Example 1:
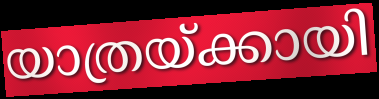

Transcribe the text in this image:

യാത്രയ്ക്കായി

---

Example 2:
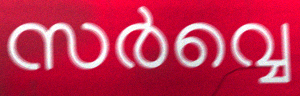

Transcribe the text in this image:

സർവ്വെ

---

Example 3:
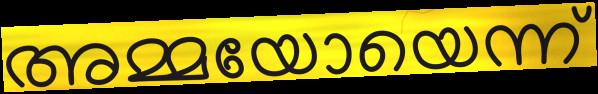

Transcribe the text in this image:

അമ്മയോയെന്ന്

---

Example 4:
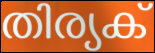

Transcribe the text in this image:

തിര്യക്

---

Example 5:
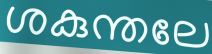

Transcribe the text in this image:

ശകുന്തലേ